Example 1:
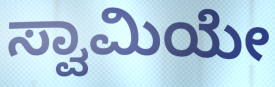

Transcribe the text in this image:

ಸ್ವಾಮಿಯೇ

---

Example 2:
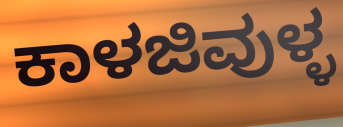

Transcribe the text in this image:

ಕಾಳಜಿವುಳ್ಳ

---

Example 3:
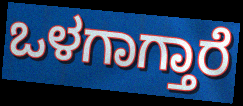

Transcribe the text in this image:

ಒಳಗಾಗ್ತಾರೆ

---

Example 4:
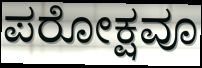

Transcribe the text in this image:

ಪರೋಕ್ಷವೂ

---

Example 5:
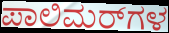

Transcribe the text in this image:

ಪಾಲಿಮರ್‌ಗಳ